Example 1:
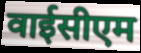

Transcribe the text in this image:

वाईसीएम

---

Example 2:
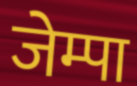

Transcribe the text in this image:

जेम्पा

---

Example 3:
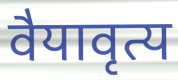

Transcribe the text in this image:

वैयावृत्य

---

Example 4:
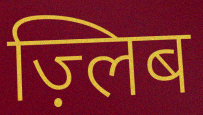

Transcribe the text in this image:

ज़्लिब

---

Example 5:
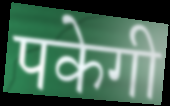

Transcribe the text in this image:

पकेगी